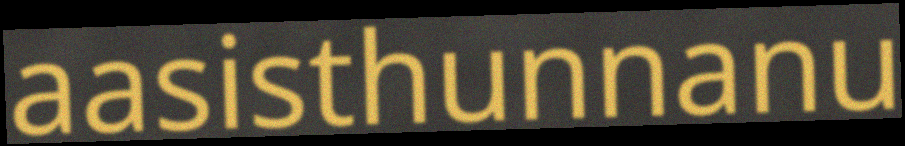
aasisthunnanu